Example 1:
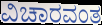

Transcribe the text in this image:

ವಿಚಾರವಂತ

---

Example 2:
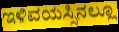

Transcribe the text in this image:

ಇಳಿವಯಸ್ಸಿನಲ್ಲೂ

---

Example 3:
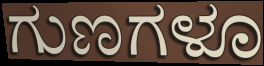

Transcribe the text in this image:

ಗುಣಗಳೂ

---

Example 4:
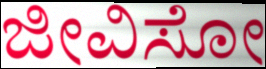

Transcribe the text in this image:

ಜೀವಿಸೋ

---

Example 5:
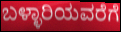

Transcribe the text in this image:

ಬಳ್ಳಾರಿಯವರೆಗೆ